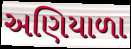
અણિયાળા